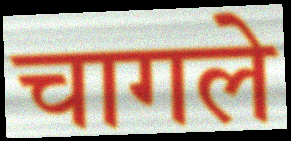
चागले